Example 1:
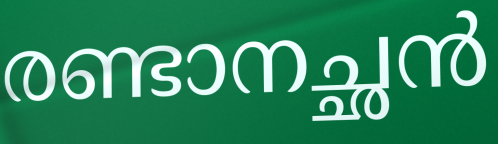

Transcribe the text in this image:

രണ്ടാനച്ഛൻ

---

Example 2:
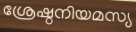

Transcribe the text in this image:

ശ്രേഷ്ഠനിയമസ്യ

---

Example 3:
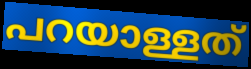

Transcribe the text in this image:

പറയാള്ളത്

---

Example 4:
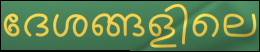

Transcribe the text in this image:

ദേശങ്ങളിലെ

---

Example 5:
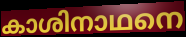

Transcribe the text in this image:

കാശിനാഥനെ